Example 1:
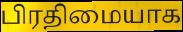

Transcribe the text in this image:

பிரதிமையாக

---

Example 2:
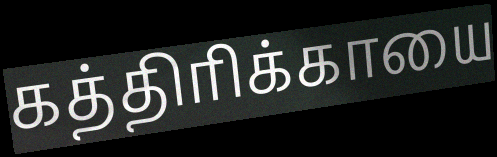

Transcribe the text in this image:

கத்திரிக்காயை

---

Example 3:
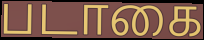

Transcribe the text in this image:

படாகை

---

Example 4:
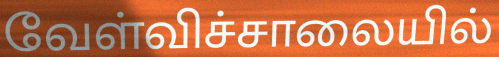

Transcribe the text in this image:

வேள்விச்சாலையில்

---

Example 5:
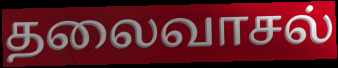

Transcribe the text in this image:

தலைவாசல்